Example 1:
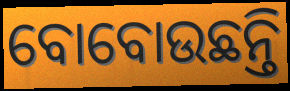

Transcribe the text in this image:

ବୋବୋଉଛନ୍ତି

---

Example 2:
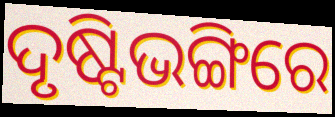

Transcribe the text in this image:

ଦୃଷ୍ଟିଭଙ୍ଗିରେ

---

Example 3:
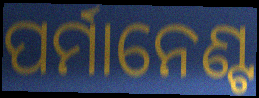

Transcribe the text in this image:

ପର୍ମାନେଣ୍ଟ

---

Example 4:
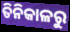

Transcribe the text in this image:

ତିନିକାଳରୁ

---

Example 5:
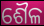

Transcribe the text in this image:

ଶୈଳ